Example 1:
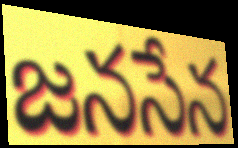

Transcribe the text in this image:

జనసేన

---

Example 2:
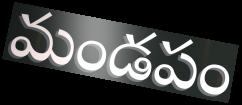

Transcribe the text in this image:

మండపం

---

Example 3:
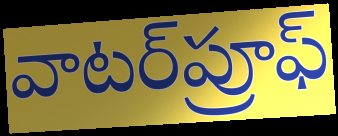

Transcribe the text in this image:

వాటర్‌ప్రూఫ్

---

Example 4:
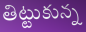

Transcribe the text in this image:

తిట్టుకున్న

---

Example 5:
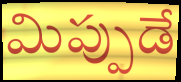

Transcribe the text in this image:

మిప్పుడే